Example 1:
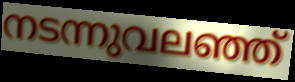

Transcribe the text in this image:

നടന്നുവലഞ്ഞ്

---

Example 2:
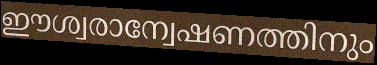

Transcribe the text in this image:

ഈശ്വരാന്വേഷണത്തിനും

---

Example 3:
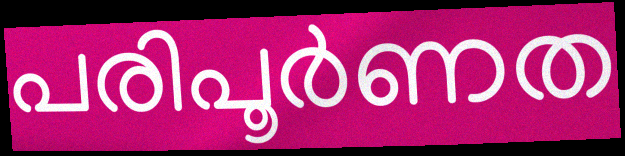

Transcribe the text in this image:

പരിപൂർണത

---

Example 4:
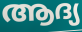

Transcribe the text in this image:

ആദ്യ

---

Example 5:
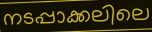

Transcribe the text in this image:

നടപ്പാക്കലിലെ